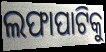
ଲଫାପାଟିକୁ